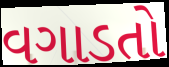
વગાડતો